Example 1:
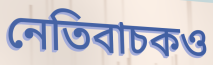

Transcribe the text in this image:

নেতিবাচকও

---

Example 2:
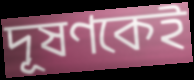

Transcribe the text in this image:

দূষণকেই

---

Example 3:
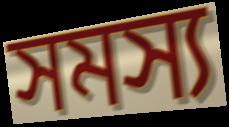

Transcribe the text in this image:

সমস্য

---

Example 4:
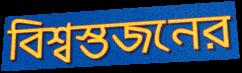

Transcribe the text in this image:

বিশ্বস্তজনের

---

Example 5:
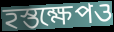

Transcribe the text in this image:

হস্তক্ষেপও